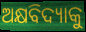
ଅକ୍ଷବିଦ୍ୟାକୁ